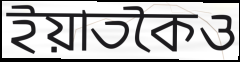
ইয়াতকৈও